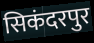
सिकंदरपुर